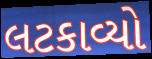
લટકાવ્યો